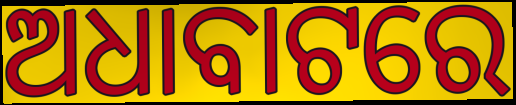
ଅଧାବାଟରେ